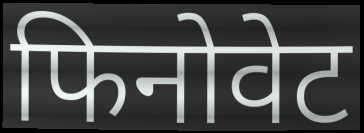
फिनोवेट